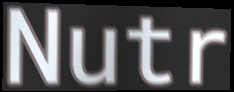
Nutr